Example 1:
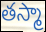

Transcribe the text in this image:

తస్మా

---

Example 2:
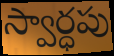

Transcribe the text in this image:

స్వార్ధపు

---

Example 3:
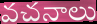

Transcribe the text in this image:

వచనాలు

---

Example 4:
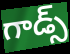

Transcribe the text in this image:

గాడ్స్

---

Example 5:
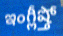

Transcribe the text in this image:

ఇంగ్లీష్తో